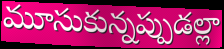
మూసుకున్నప్పుడల్లా